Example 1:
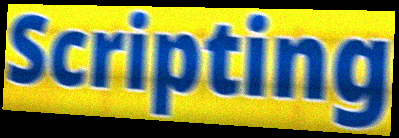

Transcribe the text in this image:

Scripting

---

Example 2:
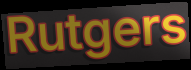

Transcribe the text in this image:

Rutgers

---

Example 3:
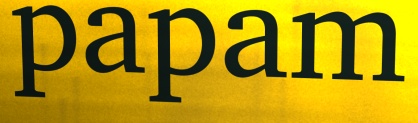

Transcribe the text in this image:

papam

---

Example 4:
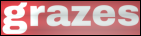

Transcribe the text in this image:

grazes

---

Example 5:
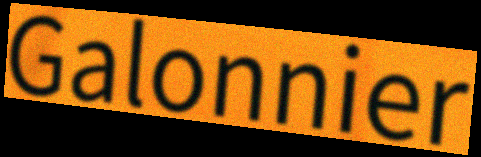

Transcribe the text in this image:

Galonnier